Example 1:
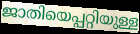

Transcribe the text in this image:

ജാതിയെപ്പറ്റിയുള്ള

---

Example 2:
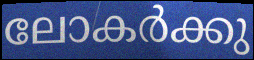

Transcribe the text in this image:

ലോകർക്കു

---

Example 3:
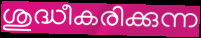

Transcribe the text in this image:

ശുദ്ധീകരിക്കുന്ന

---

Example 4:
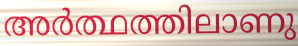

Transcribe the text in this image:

അർത്ഥത്തിലാണു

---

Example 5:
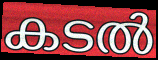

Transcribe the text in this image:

കടൽ